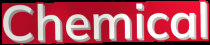
Chemical